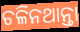
ଚଳିନଥାନ୍ତା